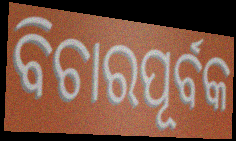
ବିଚାରପୂର୍ବକ